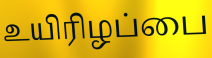
உயிரிழப்பை